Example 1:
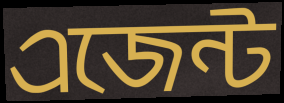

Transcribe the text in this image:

এজেন্ট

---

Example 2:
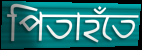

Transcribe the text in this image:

পিতাহঁতে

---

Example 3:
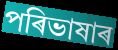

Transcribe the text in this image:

পৰিভাষাৰ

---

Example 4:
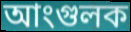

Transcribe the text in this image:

আংগুলক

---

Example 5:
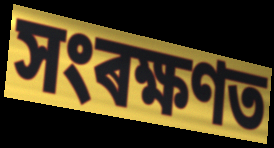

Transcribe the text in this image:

সংৰক্ষণত